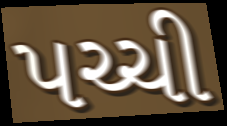
પચ્ચી